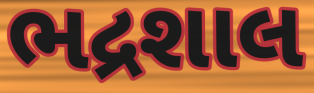
ભદ્રશાલ